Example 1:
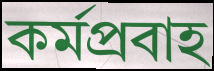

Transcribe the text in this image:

কর্মপ্রবাহ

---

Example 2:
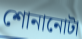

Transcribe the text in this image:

শোনানোটা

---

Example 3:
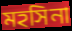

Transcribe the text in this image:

মহসিনা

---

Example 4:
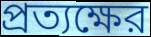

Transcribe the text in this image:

প্রত্যক্ষের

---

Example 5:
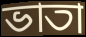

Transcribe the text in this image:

ভাতা